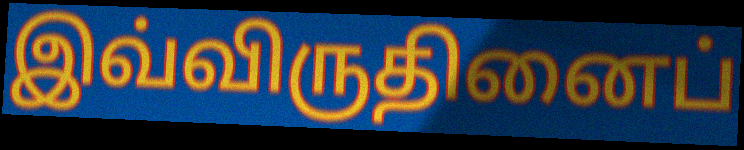
இவ்விருதினைப்